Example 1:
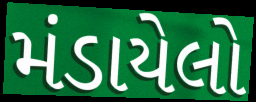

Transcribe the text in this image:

મંડાયેલો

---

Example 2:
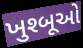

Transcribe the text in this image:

ખુશ્બૂઓ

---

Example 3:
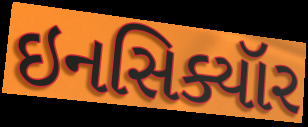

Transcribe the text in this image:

ઇનસિક્યૉર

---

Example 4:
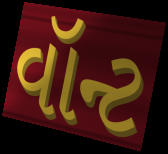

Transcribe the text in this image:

વૉન્ટ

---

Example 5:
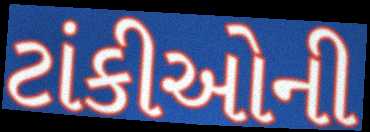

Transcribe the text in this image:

ટાંકીઓની